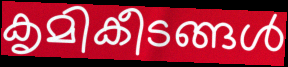
കൃമികീടങ്ങൾ